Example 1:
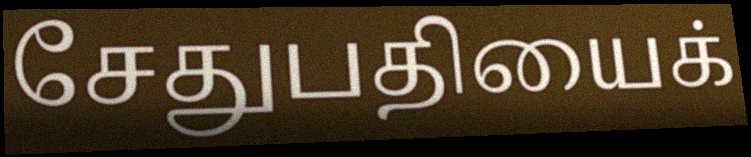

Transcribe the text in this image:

சேதுபதியைக்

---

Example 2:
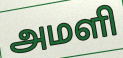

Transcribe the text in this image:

அமளி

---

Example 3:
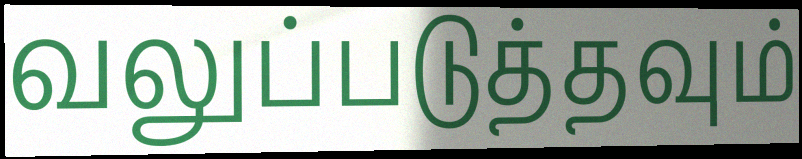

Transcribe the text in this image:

வலுப்படுத்தவும்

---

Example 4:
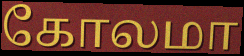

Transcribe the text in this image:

கோலமா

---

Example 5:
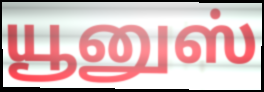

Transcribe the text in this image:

யூனுஸ்